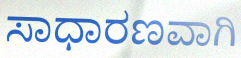
ಸಾಧಾರಣವಾಗಿ